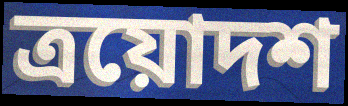
ত্রয়োদশ